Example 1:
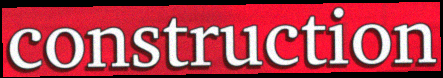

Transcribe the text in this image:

construction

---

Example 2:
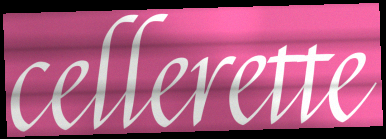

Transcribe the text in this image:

cellerette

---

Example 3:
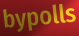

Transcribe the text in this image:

bypolls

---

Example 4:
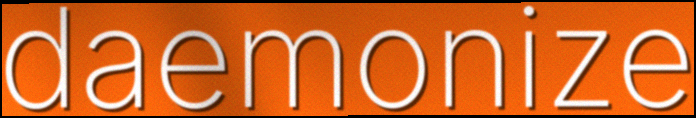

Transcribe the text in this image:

daemonize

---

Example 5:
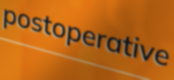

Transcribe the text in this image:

postoperative